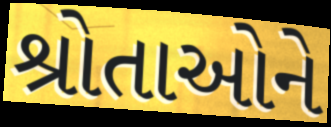
શ્રોતાઓને